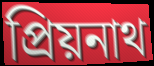
প্রিয়নাথ